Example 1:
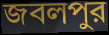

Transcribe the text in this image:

জবলপুর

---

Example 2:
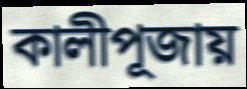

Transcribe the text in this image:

কালীপূজায়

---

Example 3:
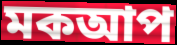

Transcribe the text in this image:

মকআপ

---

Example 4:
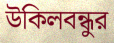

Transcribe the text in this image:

উকিলবন্ধুর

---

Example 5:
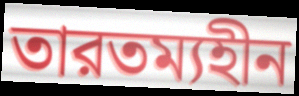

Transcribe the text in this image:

তারতম্যহীন